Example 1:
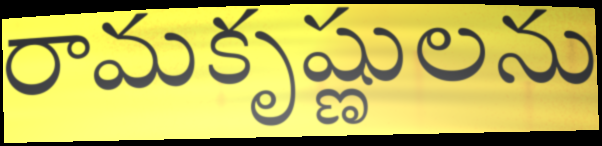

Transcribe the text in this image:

రామకృష్ణులను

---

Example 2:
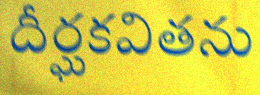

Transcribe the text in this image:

దీర్ఘకవితను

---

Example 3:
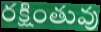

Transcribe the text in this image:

రక్షింతువు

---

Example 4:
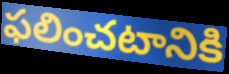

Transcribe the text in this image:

ఫలించటానికి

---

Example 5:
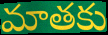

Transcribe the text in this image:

మాతకు